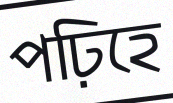
পঢ়িহে